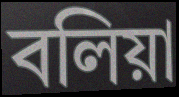
বলিয়া